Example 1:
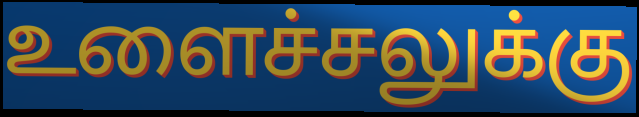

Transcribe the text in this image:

உளைச்சலுக்கு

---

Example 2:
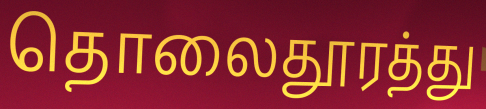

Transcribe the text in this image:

தொலைதூரத்து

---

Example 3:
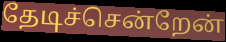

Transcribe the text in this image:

தேடிச்சென்றேன்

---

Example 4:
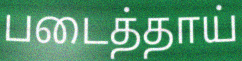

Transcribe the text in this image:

படைத்தாய்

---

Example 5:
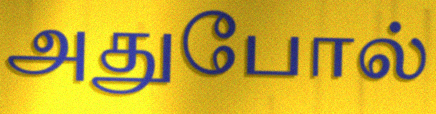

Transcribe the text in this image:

அதுபோல்